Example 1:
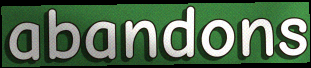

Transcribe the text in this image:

abandons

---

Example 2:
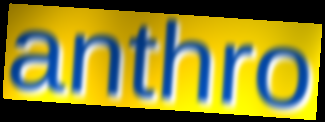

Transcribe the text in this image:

anthro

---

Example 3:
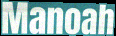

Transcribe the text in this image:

Manoah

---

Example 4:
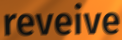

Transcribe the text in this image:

reveive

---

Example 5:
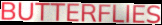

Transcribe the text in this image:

BUTTERFLIES